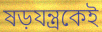
ষড়যন্ত্রকেই